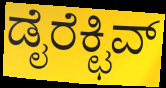
ಡೈರೆಕ್ಟಿವ್